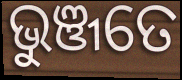
ଭୁଞ୍ଜତେ